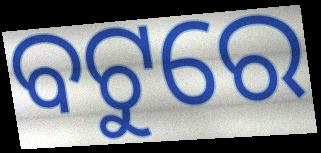
ବଟୁରେ